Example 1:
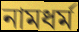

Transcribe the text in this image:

নামধৰ্ম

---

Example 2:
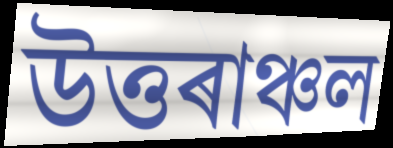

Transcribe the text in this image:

উত্তৰাঞ্চল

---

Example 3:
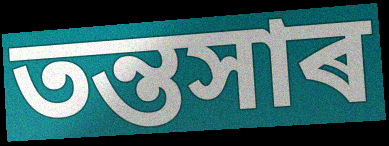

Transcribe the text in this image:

তন্তসাৰ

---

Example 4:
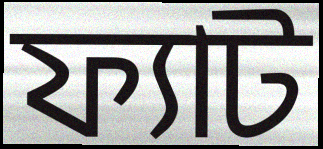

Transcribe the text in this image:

ফ্যাট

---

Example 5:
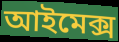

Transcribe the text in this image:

আইমেক্স